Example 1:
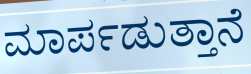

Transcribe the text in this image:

ಮಾರ್ಪಡುತ್ತಾನೆ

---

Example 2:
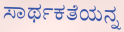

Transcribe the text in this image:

ಸಾರ್ಥಕತೆಯನ್ನ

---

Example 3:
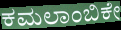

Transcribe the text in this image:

ಕಮಲಾಂಬಿಕೇ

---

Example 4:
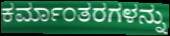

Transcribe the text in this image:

ಕರ್ಮಾಂತರಗಳನ್ನು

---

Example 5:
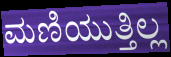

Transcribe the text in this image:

ಮಣಿಯುತ್ತಿಲ್ಲ